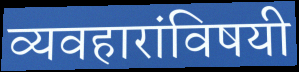
व्यवहारांविषयी